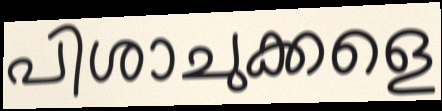
പിശാചുക്കളെ